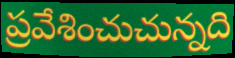
ప్రవేశించుచున్నది